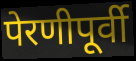
पेरणीपूर्वी